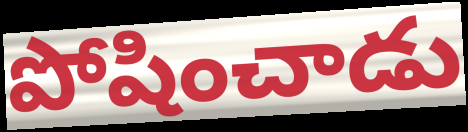
పోషించాడు